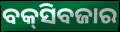
ବକ୍‌ସିବଜାର